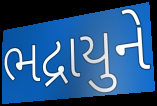
ભદ્રાયુને